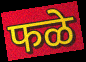
फळे